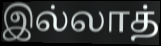
இல்லாத்